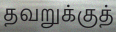
தவறுக்குத்